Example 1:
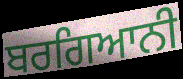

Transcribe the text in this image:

ਬਰਗਿਆਨੀ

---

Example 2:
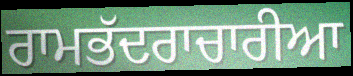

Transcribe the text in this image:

ਰਾਮਭੱਦਰਾਚਾਰੀਆ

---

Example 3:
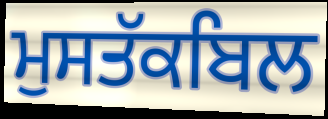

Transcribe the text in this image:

ਮੁਸਤੱਕਬਿਲ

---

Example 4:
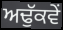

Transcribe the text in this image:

ਅਢੁੱਕਵੇਂ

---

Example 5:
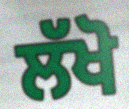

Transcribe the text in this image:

ਲੱਖੋ